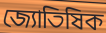
জ্যোতিষিক